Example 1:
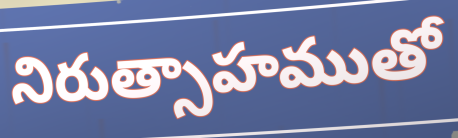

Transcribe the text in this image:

నిరుత్సాహముతో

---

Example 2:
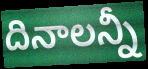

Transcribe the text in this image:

దినాలన్నీ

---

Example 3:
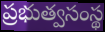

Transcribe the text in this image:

ప్రభుత్వసంస్థ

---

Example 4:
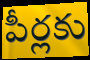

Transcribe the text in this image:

పీర్లకు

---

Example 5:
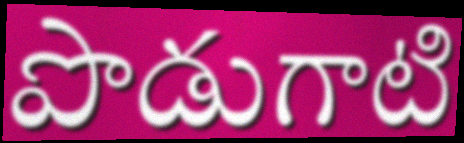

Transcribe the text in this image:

పొడుగాటి